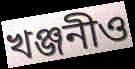
খঞ্জনীও